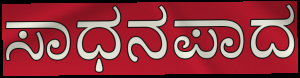
ಸಾಧನಪಾದ